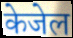
केजेल